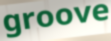
groove